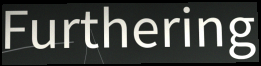
Furthering